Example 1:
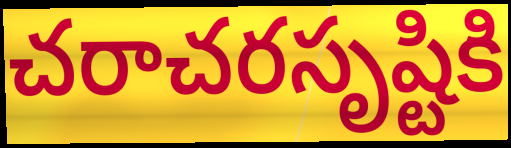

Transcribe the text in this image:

చరాచరసృష్టికి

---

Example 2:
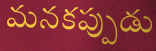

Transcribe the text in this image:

మనకప్పుడు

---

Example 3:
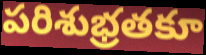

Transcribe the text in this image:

పరిశుభ్రతకూ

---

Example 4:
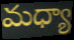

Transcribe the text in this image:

మధ్యా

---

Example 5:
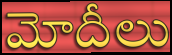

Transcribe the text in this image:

మోదీలు